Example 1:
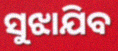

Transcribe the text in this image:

ସୁଝାଯିବ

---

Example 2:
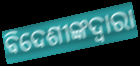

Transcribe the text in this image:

ବିଦେଶୀଙ୍କଦ୍ୱାରା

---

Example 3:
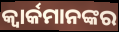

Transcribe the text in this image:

କ୍ୱାର୍କମାନଙ୍କର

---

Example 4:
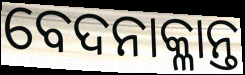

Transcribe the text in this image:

ବେଦନାକ୍ଳାନ୍ତ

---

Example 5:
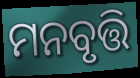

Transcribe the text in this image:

ମନବୃତ୍ତି